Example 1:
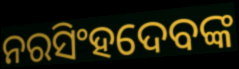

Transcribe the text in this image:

ନରସିଂହଦେବଙ୍କ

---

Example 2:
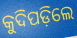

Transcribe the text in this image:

କୁଦିପଡ଼ିଲେ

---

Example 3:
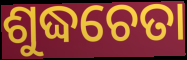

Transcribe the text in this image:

ଶୁଦ୍ଧଚେତା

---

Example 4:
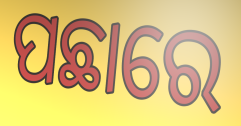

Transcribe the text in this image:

ପଛାରେ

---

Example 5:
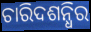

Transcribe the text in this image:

ଚାରିଦଶନ୍ଧିର